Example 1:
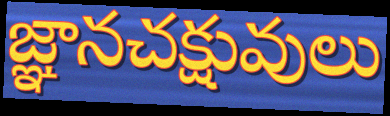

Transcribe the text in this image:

జ్ఞానచక్షువులు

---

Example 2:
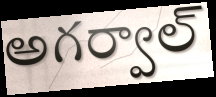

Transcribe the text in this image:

అగర్వాల్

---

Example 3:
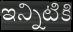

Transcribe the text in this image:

ఇన్నిటికి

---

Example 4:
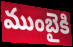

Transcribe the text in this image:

ముంబైకి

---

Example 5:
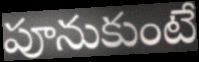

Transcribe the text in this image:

పూనుకుంటే